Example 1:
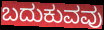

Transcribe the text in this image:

ಬದುಕುವವು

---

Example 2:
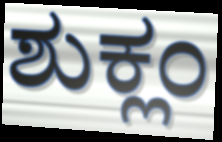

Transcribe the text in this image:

ಶುಕ್ಲಂ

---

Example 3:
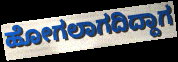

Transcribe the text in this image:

ಹೋಗಲಾಗದಿದ್ದಾಗ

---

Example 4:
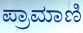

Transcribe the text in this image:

ಪ್ರಾಮಾಣಿ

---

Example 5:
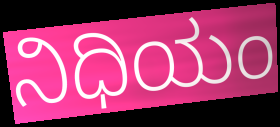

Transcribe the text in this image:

ನಿಧಿಯಂ